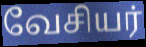
வேசியர்